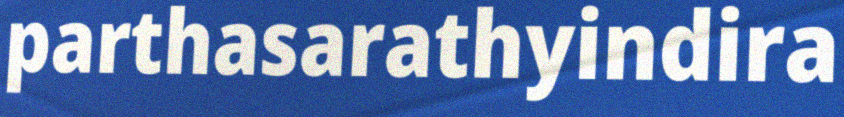
parthasarathyindira